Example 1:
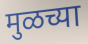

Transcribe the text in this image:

मुळच्या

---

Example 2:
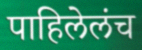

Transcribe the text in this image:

पाहिलेलंच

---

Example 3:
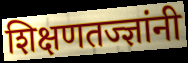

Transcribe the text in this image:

शिक्षणतज्ज्ञांनी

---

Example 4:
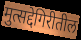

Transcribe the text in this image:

मुत्सद्देगिरीतील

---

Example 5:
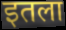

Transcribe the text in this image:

इतला